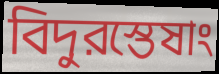
বিদুরস্তেষাং